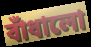
বাঁধালো